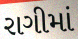
રાગીમાં